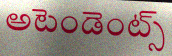
అటెండెంట్స్